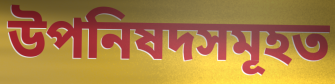
উপনিষদসমূহত